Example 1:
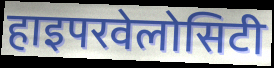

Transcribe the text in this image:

हाइपरवेलोसिटी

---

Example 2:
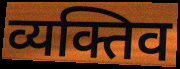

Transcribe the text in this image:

व्यक्तिव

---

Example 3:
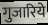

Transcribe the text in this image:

गुजारिये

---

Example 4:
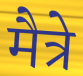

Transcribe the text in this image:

मैत्रे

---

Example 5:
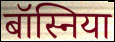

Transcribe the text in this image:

बॉस्निया